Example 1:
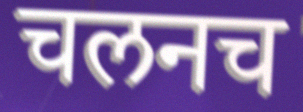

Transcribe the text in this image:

चलनच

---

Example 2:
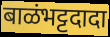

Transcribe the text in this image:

बाळंभट्टदादा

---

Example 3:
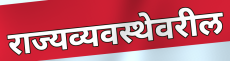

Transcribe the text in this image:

राज्यव्यवस्थेवरील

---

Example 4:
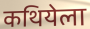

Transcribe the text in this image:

कथियेला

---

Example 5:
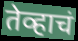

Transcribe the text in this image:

तेव्हाचं